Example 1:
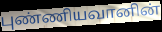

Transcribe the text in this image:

புண்ணியவானின்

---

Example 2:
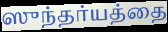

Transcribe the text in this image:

ஸுந்தர்யத்தை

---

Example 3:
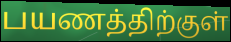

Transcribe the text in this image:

பயணத்திற்குள்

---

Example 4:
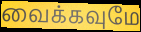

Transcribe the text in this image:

வைக்கவுமே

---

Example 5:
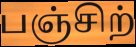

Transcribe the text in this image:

பஞ்சிற்